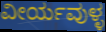
ವೀರ್ಯವುಳ್ಳ